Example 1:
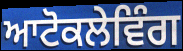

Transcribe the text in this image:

ਆਟੋਕਲੇਵਿੰਗ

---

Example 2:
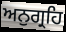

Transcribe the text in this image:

ਅਨੁਗ੍ਰਹਿ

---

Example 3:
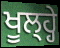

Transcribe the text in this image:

ਖੂਲ੍ਹ੍ਹੇ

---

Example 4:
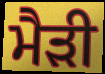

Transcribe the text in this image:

ਮੈੜੀ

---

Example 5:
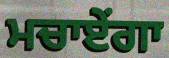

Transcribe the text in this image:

ਮਚਾਏਂਗਾ